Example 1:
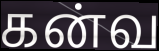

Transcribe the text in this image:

கன்வ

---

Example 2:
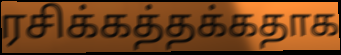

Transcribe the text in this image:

ரசிக்கத்தக்கதாக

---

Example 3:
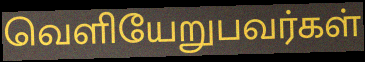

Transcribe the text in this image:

வெளியேறுபவர்கள்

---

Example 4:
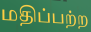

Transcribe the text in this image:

மதிப்பற்ற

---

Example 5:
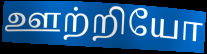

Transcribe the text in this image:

ஊற்றியோ